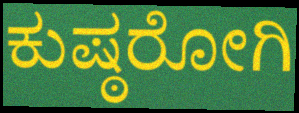
ಕುಷ್ಠರೋಗಿ